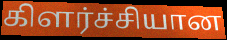
கிளர்ச்சியான